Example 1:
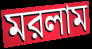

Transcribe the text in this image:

মরলাম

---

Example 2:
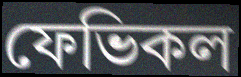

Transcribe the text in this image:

ফেভিকল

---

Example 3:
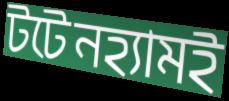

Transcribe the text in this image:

টটেনহ্যামই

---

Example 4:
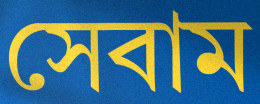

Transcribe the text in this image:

সেবাম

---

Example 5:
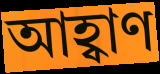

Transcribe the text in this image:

আহ্বাণ